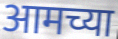
आमच्या